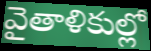
వైతాళికుల్లో